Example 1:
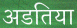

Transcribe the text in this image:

अडतिया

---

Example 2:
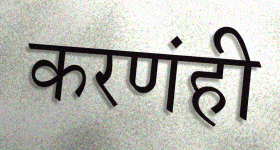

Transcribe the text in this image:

करणंही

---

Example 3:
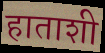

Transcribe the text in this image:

हाताशी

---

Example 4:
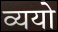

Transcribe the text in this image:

व्ययो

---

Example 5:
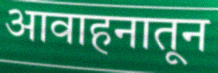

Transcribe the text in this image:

आवाहनातून